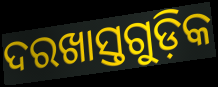
ଦରଖାସ୍ତଗୁଡ଼ିକ